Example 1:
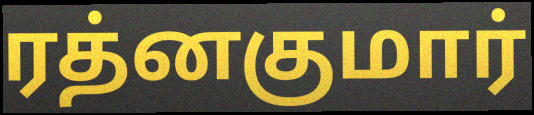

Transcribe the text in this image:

ரத்னகுமார்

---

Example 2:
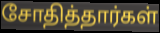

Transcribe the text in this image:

சோதித்தார்கள்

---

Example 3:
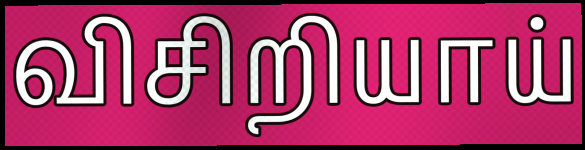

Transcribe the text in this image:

விசிறியாய்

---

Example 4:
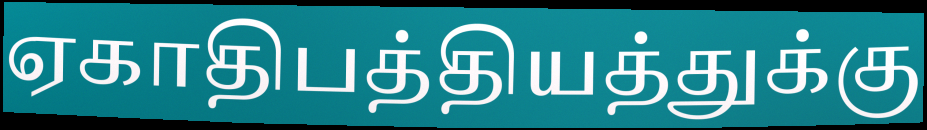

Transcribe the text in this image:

ஏகாதிபத்தியத்துக்கு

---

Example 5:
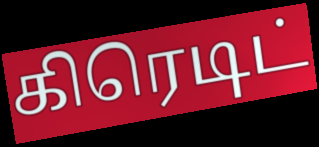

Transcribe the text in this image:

கிரெடிட்